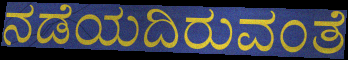
ನಡೆಯದಿರುವಂತೆ